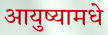
आयुष्यामधे